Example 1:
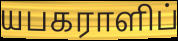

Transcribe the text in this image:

யபகராளிப்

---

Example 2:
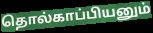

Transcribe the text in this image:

தொல்காப்பியனும்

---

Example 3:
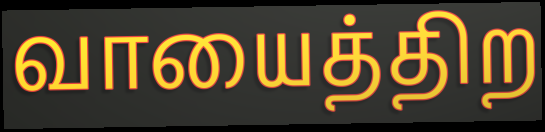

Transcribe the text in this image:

வாயைத்திற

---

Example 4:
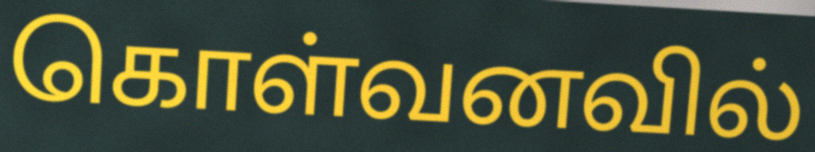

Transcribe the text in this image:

கொள்வனவில்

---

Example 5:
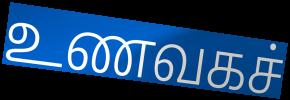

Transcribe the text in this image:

உணவகச்